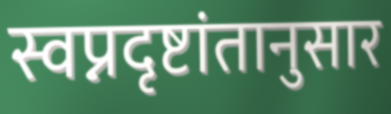
स्वप्नदृष्टांतानुसार